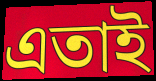
এতাই